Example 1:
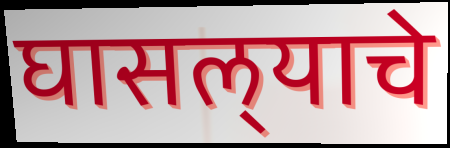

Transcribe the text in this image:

घासल्याचे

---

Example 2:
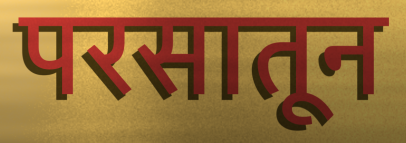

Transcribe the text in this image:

परसातून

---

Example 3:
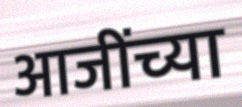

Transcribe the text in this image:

आजींच्या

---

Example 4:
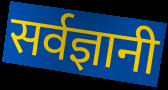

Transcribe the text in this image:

सर्वज्ञानी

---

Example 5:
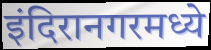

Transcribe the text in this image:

इंदिरानगरमध्ये